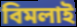
বিমলাই